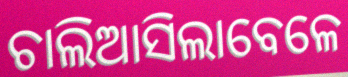
ଚାଲିଆସିଲାବେଳେ